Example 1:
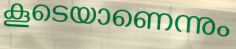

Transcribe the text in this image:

കൂടെയാണെന്നും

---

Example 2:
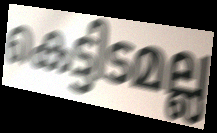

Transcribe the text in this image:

കെട്ടിടമല്ല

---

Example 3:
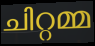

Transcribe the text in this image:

ചിറ്റമ്മ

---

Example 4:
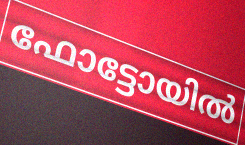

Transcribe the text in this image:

ഫോട്ടോയിൽ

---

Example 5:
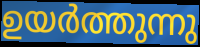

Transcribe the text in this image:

ഉയർത്തുന്നു